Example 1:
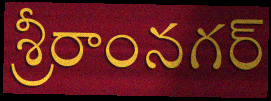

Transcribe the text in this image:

శ్రీరాంనగర్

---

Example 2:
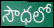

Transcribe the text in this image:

సౌధలో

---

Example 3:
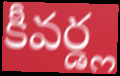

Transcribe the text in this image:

కీవర్డ్ల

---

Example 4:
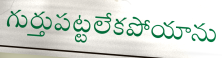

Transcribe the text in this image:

గుర్తుపట్టలేకపోయాను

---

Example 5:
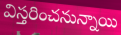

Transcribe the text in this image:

విస్తరించనున్నాయి